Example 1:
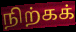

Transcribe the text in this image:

நிற்கக்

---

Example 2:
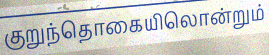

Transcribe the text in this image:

குறுந்தொகையிலொன்றும்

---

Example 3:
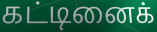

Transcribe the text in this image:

கட்டினைக்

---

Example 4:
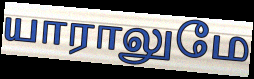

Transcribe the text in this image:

யாராலுமே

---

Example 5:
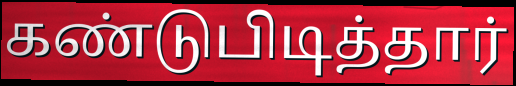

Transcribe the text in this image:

கண்டுபிடித்தார்